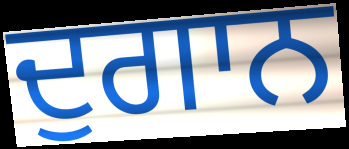
ਦੁਗਾਨ